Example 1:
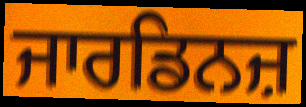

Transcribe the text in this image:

ਜਾਰਡਿਨਜ਼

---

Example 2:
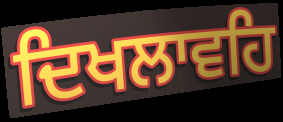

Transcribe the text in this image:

ਦਿਖਲਾਵਹਿ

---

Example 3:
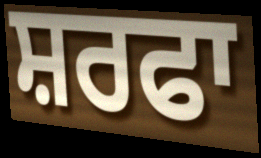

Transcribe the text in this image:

ਸ਼ਰਫਾ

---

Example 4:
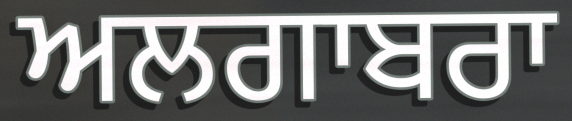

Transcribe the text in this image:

ਅਲਗਾਬਰਾ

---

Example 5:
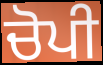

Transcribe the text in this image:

ਚੋਪੀ